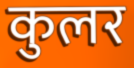
कुलर